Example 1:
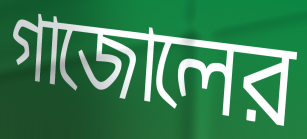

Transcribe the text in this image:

গাজোলের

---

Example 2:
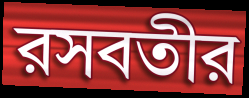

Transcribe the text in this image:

রসবতীর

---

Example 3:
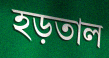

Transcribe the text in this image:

হড়তাল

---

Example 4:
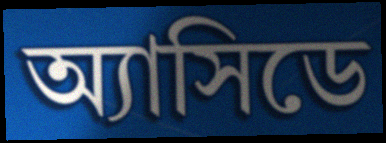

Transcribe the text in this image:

অ্যাসিডে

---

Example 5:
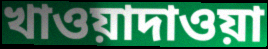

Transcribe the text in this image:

খাওয়াদাওয়া